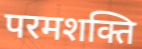
परमशक्ति